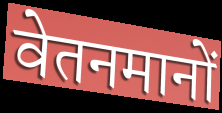
वेतनमानों